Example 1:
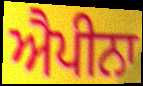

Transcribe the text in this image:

ਐਪੀਨਾ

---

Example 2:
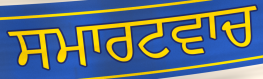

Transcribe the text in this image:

ਸਮਾਰਟਵਾਚ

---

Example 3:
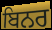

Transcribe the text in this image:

ਬਿਨਰ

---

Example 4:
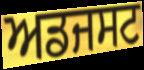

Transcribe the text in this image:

ਅਡਜਸਟ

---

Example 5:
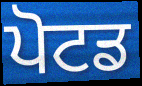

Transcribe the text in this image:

ਪੋਟਡ